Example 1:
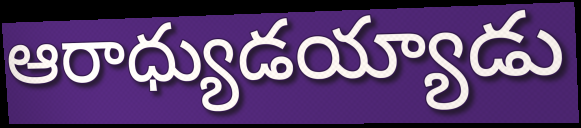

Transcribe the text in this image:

ఆరాధ్యుడయ్యాడు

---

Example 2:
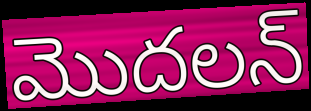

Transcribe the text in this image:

మొదలన్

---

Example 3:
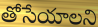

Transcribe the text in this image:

తోసేయాలని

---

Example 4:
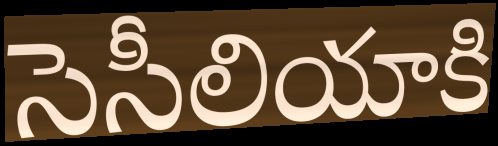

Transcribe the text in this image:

సెసీలియాకి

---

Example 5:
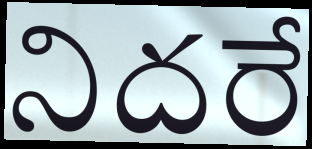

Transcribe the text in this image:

నిదరే